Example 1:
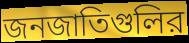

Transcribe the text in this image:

জনজাতিগুলির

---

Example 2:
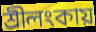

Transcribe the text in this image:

শ্রীলংকায়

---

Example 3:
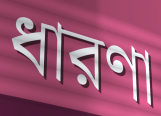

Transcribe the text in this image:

ধারণা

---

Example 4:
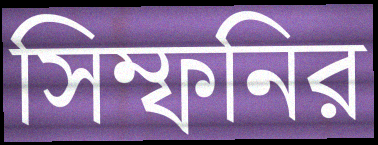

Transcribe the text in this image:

সিম্ফনির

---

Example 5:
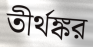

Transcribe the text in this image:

তীর্থঙ্কর